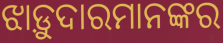
ଝାଡ଼ୁଦାରମାନଙ୍କର